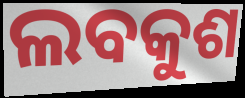
ଲବକୁଶ